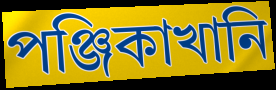
পঞ্জিকাখানি